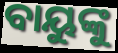
ବାୟୁଙ୍କୁ